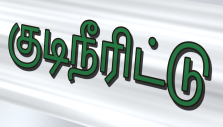
குடிநீரிட்டு